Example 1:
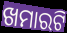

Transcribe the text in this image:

ଖମାରଟି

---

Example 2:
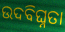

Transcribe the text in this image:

ଉଦବିଘ୍ନତା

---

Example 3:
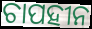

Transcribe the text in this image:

ଚାପହୀନ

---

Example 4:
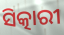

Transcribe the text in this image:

ସିତ୍କାରୀ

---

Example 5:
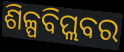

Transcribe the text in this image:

ଶିଳ୍ପବିପ୍ଲବର